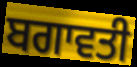
ਬਗਾਵਤੀ